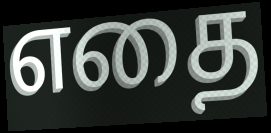
எதை